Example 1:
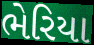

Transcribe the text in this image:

ભેરિયા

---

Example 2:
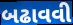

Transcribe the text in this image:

બઢાવવી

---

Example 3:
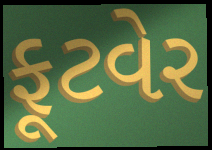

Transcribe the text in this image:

ફૂટવેર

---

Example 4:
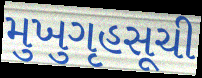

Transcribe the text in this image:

મુખુગૃહસૂચી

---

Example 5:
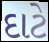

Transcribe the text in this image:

દાટે